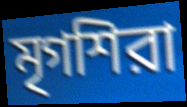
মৃগশিরা